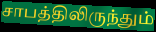
சாபத்திலிருந்தும்